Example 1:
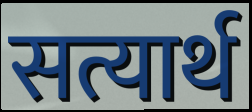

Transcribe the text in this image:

सत्यार्थ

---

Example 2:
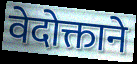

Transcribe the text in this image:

वेदोक्ताने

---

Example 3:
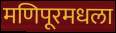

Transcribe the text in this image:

मणिपूरमधला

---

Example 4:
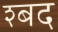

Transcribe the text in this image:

श्बद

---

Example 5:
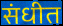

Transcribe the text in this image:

संधीत